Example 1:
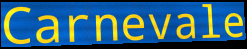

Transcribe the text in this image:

Carnevale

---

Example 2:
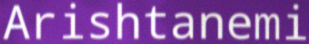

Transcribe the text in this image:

Arishtanemi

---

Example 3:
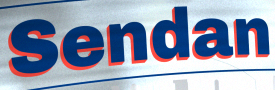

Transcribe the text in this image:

Sendan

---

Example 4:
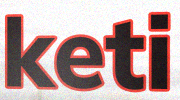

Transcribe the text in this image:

keti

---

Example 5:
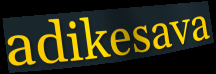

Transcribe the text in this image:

adikesava